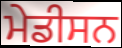
ਮੇਡੀਸਨ